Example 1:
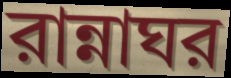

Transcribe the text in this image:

রান্নাঘর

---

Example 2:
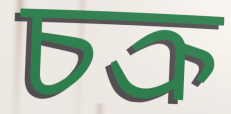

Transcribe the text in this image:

চক্র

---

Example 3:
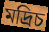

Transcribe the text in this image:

মদ্রিচ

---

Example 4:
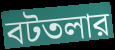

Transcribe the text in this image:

বটতলার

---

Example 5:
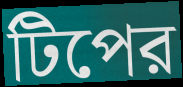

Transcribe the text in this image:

টিপের